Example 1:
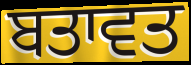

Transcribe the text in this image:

ਬਤਾਵਤ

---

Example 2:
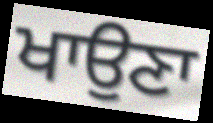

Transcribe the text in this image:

ਖਾਉਣਾ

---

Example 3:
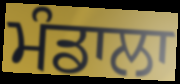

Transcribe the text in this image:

ਮੰਡਾਲਾ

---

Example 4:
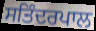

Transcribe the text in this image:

ਸਤਿੰਦਰਪਾਲ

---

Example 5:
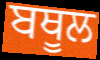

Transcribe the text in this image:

ਬਥੂਲ